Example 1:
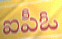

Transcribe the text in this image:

ఐపీఓ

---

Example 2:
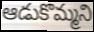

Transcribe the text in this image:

ఆడుకొమ్మని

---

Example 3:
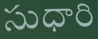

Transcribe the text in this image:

సుధారి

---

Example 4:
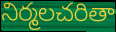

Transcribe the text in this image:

నిర్మలచరితా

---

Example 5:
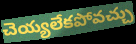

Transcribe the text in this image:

చెయ్యలేకపోవచ్చు